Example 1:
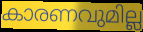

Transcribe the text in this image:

കാരണവുമില്ല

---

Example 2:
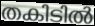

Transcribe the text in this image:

തകിടിൽ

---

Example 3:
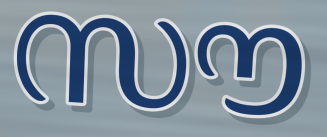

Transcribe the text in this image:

സൗ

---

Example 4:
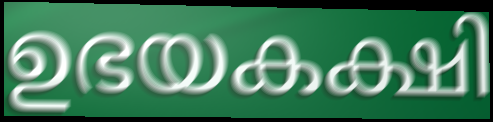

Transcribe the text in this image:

ഉഭയകക്ഷി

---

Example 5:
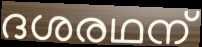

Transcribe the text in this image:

ദശരഥന്